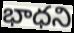
భాధని